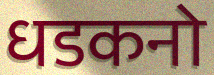
धडकनो